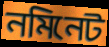
নমিনেট